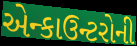
એન્કાઉન્ટરોની